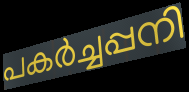
പകർച്ചപ്പനി